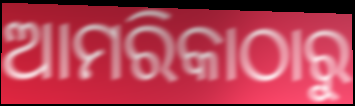
ଆମରିକାଠାରୁ